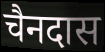
चैनदास